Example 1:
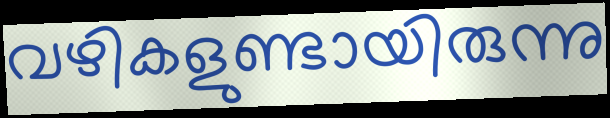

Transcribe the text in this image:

വഴികളുണ്ടായിരുന്നു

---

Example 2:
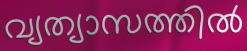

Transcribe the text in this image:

വ്യത്യാസത്തിൽ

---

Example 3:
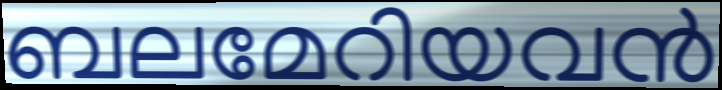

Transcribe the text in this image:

ബലമേറിയവൻ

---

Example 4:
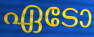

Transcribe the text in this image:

ഏടോ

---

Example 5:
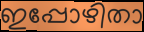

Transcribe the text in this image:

ഇപ്പോഴിതാ